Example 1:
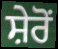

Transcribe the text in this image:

ਸ਼ੇਰੋਂ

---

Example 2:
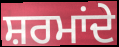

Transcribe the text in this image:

ਸ਼ਰਮਾਂਦੇ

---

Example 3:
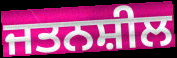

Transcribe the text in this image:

ਜਤਨਸ਼ੀਲ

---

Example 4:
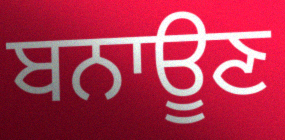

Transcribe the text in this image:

ਬਨਾਊਣ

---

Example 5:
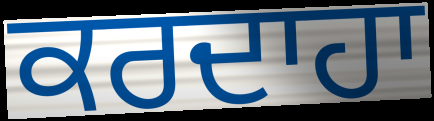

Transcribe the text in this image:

ਕਰਦਾਹਾ